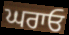
ਘਰਾਓ